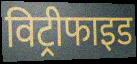
विट्रीफाइड